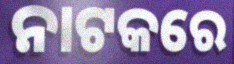
ନାଟକରେ